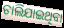
ଚାଲିଯାଇଥିବା